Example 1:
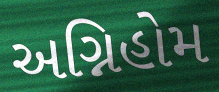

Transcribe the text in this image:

અગ્નિહોમ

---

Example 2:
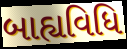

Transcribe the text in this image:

બાહ્યવિધિ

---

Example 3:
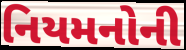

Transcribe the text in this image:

નિયમનોની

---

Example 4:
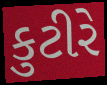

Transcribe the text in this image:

કુટીરે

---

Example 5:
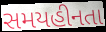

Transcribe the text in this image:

સમયહીનતા